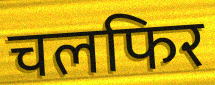
चलफिर